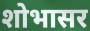
शोभासर